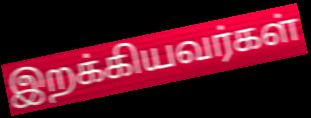
இறக்கியவர்கள்